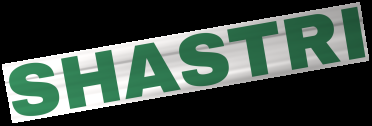
SHASTRI